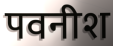
पवनीश